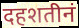
दहशतीनं